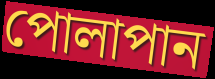
পোলাপান